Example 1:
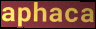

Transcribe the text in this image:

aphaca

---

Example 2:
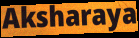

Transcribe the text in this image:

Aksharaya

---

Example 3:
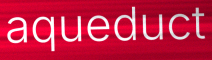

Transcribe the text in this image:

aqueduct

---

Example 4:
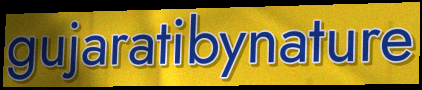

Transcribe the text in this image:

gujaratibynature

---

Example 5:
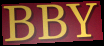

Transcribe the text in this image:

BBY